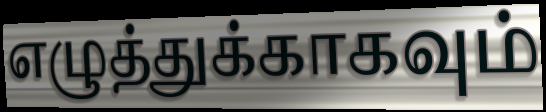
எழுத்துக்காகவும்